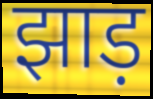
झाड़